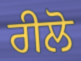
ਰੀਲੋ